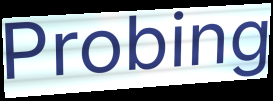
Probing